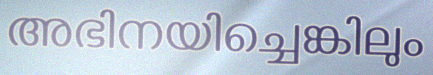
അഭിനയിച്ചെങ്കിലും